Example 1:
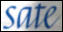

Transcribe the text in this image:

sate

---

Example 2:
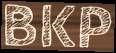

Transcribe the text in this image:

BKP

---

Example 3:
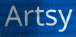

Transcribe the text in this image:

Artsy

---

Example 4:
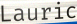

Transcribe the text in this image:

Lauric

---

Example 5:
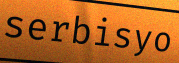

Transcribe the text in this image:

serbisyo